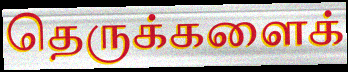
தெருக்களைக்